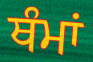
ਥੰਮਾਂ